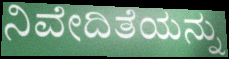
ನಿವೇದಿತೆಯನ್ನು